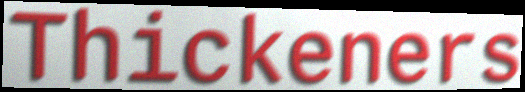
Thickeners